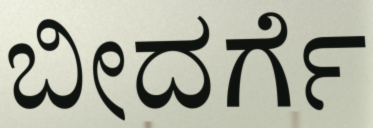
ಬೀದರ್ಗೆ